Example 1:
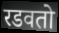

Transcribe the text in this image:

रडवतो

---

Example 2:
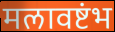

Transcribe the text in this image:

मलावष्टंभ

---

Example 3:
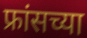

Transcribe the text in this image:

फ्रांसच्या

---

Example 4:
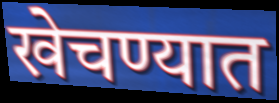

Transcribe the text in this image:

खेचण्यात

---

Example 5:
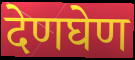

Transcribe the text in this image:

देणघेण